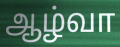
ஆழ்வா